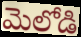
మెలోడి